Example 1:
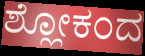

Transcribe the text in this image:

ಶ್ಲೋಕಂದ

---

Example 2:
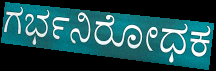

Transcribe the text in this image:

ಗರ್ಭನಿರೋಧಕ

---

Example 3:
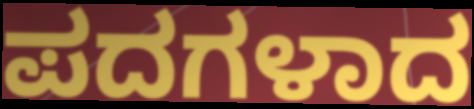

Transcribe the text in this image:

ಪದಗಳಾದ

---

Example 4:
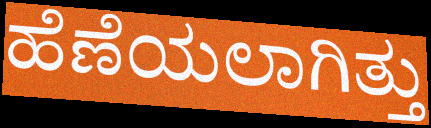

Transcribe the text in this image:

ಹೆಣೆಯಲಾಗಿತ್ತು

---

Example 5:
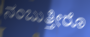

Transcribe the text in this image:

ನಂಬುತ್ತೀರೊ